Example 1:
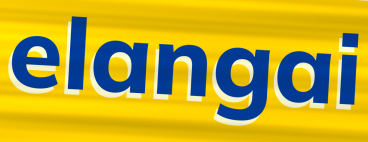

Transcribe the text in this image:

elangai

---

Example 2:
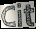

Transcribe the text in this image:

Cit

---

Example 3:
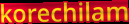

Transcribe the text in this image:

korechilam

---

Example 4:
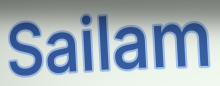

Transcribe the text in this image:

Sailam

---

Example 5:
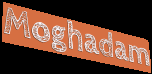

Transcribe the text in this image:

Moghadam